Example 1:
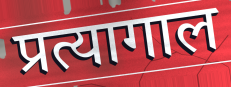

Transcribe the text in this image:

प्रत्यागाल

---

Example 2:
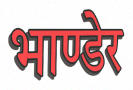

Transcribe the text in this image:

भाण्‍डेर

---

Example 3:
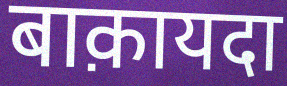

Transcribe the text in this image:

बाक़ायदा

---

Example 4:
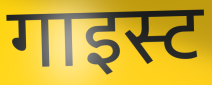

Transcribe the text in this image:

गाइस्ट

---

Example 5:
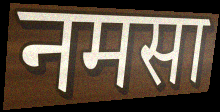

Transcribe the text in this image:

नमसा